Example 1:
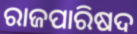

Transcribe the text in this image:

ରାଜପାରିଷଦ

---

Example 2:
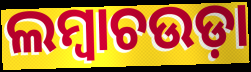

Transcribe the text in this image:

ଲମ୍ୱାଚଉଡ଼ା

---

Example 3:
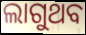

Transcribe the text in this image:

ଲାଗୁଥବ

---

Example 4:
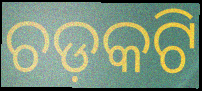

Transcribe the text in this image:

ଚଡ଼କଟି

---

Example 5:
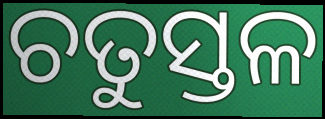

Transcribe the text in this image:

ଚତୁସ୍ତଳ